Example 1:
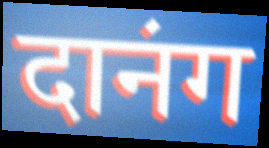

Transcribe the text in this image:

दानंग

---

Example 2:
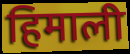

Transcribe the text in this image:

हिमाली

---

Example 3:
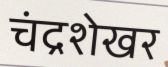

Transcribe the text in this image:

चंद्रशेखर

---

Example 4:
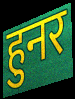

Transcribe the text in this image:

हुनर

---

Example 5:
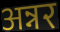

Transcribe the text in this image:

अन्नर